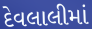
દેવલાલીમાં